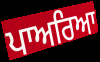
ਪਾਅਰਿਆ